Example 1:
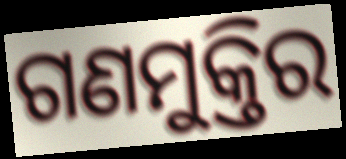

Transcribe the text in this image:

ଗଣମୁକ୍ତିର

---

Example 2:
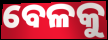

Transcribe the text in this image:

ବେଳକୁ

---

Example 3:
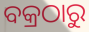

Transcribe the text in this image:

ବକ୍ରଠାରୁ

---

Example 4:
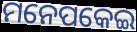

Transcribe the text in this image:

ମନେପକେଇ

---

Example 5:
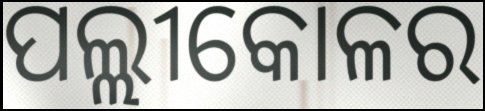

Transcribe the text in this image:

ପଲ୍ଲୀକୋଳର